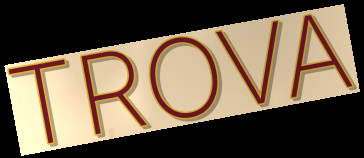
TROVA